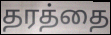
தரத்தை